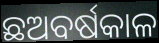
ଛଅବର୍ଷକାଳ